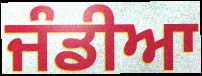
ਜੰਡੀਆ